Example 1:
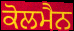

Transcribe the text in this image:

ਕੋਲਮੈਨ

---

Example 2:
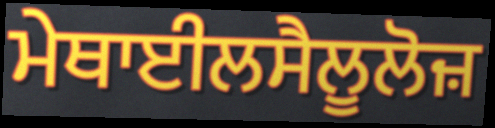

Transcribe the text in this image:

ਮੇਥਾਈਲਸੈਲੂਲੋਜ਼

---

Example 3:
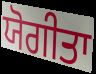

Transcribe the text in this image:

ਯੋਗੀਤਾ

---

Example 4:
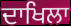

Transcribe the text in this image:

ਦਾਖਿਲਾ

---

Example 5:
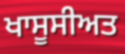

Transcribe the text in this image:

ਖਾਸੂਸੀਅਤ